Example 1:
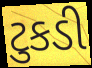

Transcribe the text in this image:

ટુકડી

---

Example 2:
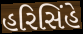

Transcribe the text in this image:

હરિસિંહે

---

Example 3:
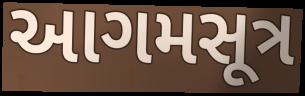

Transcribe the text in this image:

આગમસૂત્ર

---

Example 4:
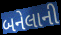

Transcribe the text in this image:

બનેલાની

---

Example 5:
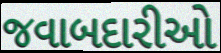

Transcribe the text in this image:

જવાબદારીઓ